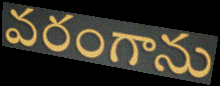
వరంగాను